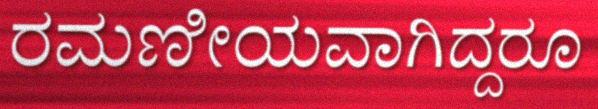
ರಮಣೀಯವಾಗಿದ್ದರೂ